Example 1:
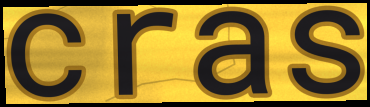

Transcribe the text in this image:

cras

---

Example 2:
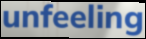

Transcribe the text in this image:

unfeeling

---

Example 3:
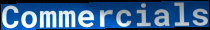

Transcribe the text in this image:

Commercials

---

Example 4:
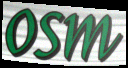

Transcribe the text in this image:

osm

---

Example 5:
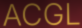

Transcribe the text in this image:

ACGL